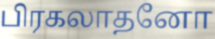
பிரகலாதனோ